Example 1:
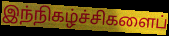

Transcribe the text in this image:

இந்நிகழ்ச்சிகளைப்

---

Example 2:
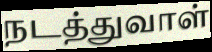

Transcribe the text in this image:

நடத்துவாள்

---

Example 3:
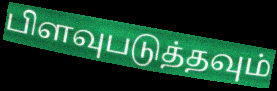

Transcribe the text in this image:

பிளவுபடுத்தவும்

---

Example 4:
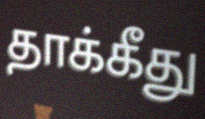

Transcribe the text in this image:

தாக்கீது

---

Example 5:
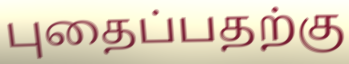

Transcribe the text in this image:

புதைப்பதற்கு